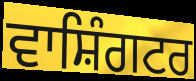
ਵਾਸ਼ਿੰਗਟਰ